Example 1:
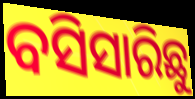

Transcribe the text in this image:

ବସିସାରିଛୁ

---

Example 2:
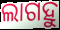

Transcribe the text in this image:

ଲାଗହୁ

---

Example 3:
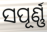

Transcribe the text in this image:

ସପୂର୍ଣ୍ଣ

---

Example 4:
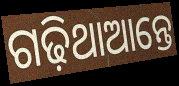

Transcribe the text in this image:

ଗଢ଼ିଥାଆନ୍ତେ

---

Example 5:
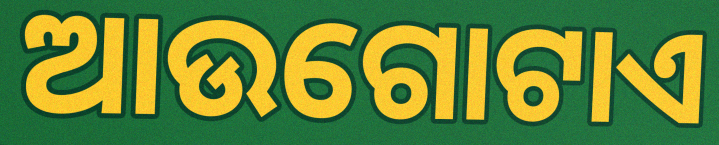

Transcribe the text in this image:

ଆଉଗୋଟାଏ